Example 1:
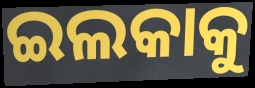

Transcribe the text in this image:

ଇଲକାକୁ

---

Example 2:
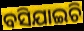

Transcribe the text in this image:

ବସିଯାଇଚି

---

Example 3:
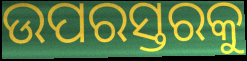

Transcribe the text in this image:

ଉପରସ୍ତରକୁ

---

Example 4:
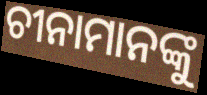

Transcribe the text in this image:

ଚୀନାମାନଙ୍କୁ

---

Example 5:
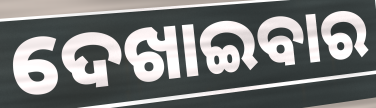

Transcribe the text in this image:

ଦେଖାଇବାର